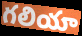
గలియా